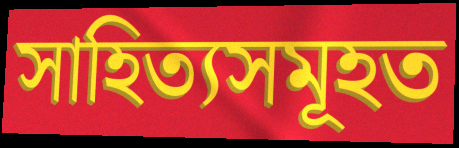
সাহিত্যসমূহত